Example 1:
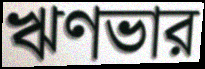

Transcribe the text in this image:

ঋণভার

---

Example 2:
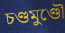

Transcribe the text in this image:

চণ্ডমুণ্ডৌ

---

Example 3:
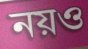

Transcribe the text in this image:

নয়ও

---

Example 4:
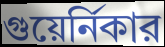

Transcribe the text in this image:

গুয়ের্নিকার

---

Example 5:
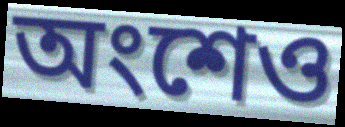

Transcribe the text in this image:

অংশেও